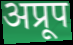
अप्रूप